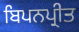
ਬਿਪਨਪ੍ਰੀਤ